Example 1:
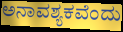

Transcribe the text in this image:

ಅನಾವಶ್ಯಕವೆಂದು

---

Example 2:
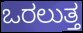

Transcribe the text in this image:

ಒರಲುತ್ತ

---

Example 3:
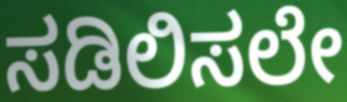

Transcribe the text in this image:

ಸಡಿಲಿಸಲೇ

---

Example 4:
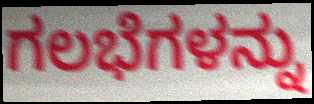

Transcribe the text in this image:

ಗಲಭೆಗಳನ್ನು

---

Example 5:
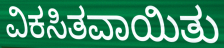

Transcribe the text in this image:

ವಿಕಸಿತವಾಯಿತು